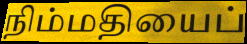
நிம்மதியைப்